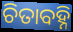
ଚିତାବହ୍ନି